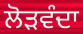
ਲੋੜਵੰਦਾ